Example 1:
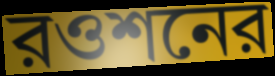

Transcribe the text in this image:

রওশনের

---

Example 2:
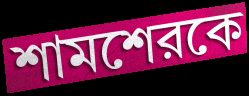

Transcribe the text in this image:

শামশেরকে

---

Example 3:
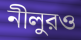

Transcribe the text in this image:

নীলুরও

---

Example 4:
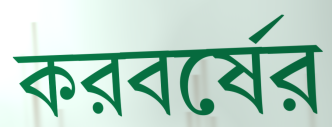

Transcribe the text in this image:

করবর্ষের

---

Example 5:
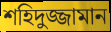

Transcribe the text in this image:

শহিদুজ্জামান